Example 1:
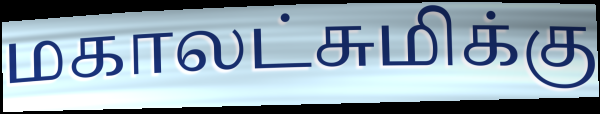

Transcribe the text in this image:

மகாலட்சுமிக்கு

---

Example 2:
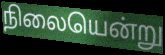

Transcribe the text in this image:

நிலையென்று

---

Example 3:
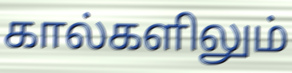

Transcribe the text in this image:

கால்களிலும்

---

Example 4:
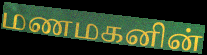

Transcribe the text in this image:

மணமகனின்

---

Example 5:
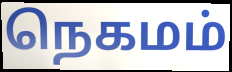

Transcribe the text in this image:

நெகமம்